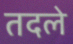
तदले